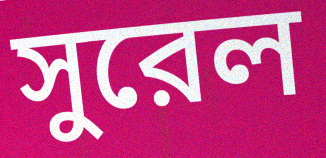
সুরেল